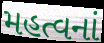
મહત્વનાં